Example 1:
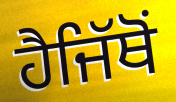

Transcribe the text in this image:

ਹੈਜਿੱਥੋਂ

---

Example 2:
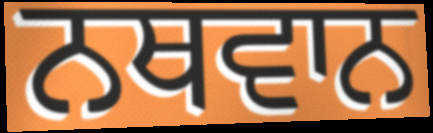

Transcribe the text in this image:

ਨਥਵਾਨ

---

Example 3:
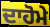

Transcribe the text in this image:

ਦਾਹੋਮੇ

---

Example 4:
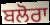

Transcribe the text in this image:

ਬਲੋਰਾ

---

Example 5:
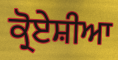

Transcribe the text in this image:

ਕ੍ਰੋਏਸ਼ੀਆ